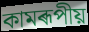
কামৰূপীয়